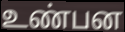
உண்பன